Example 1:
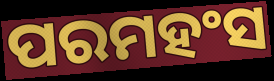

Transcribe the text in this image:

ପରମହଂସ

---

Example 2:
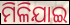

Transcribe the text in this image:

ମିଳିଯାଇ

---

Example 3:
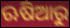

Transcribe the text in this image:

ଋଷିଆରୁ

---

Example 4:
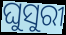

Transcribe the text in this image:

ଘୁସୁରୀ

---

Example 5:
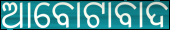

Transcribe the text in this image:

ଆବୋଟାବାଦ